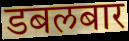
डबलबार